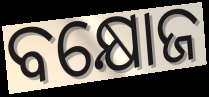
ବକ୍ଷୋଜ